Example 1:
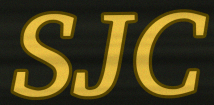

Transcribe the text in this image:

SJC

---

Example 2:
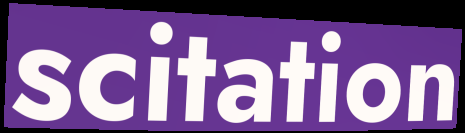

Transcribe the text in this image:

scitation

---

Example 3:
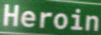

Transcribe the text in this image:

Heroin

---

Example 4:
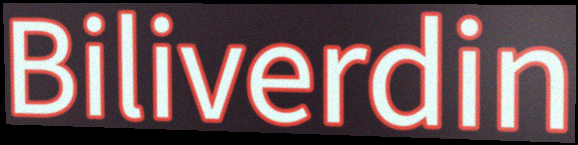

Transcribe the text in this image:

Biliverdin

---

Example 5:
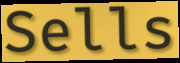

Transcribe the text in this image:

Sells